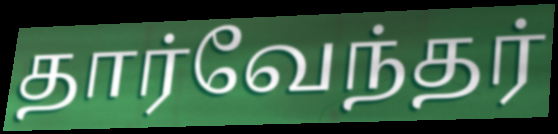
தார்வேந்தர்